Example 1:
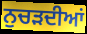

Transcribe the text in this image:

ਨੁਚੜਦੀਆਂ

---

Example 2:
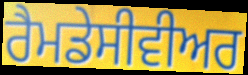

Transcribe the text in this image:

ਰੈਮਡੇਸੀਵੀਅਰ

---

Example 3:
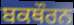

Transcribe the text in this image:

ਬਕਥੌਰਨ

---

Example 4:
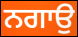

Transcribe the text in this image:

ਨਗਾਉ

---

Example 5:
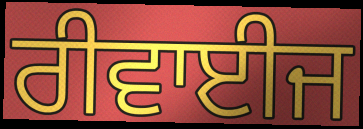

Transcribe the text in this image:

ਰੀਵਾਈਜ